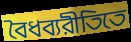
বৈধব্যরীতিতে